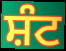
ਸ਼ੰਟ